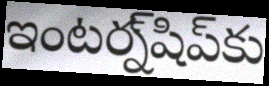
ఇంటర్న్‌షిప్‌కు